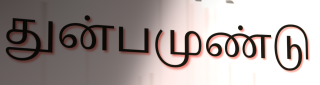
துன்பமுண்டு